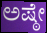
ಅಷ್ಠೇ